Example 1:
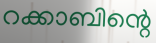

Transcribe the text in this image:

റക്കാബിന്റെ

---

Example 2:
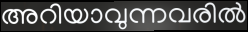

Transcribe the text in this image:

അറിയാവുന്നവരിൽ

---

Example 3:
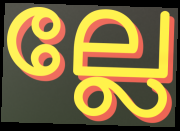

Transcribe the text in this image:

ല്ലേ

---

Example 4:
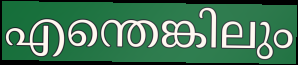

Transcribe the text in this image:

എന്തെങ്കിലും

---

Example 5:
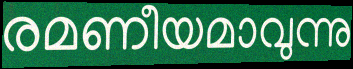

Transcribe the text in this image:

രമണീയമാവുന്നു